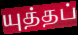
யுத்தப்